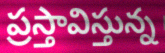
ప్రస్తావిస్తున్న